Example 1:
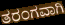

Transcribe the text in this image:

ತರಂಗವಾಗಿ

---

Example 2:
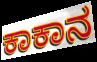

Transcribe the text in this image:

ಕಾಕಾನ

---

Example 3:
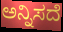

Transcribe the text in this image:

ಅನ್ನಿಸದೆ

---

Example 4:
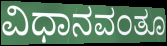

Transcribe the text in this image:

ವಿಧಾನವಂತೂ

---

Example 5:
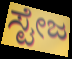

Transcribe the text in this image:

ಸ್ಟೇಜ